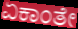
ಏಕಾಂತೇ